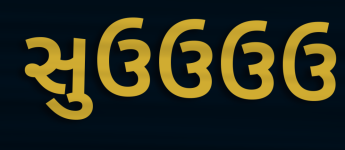
સુઉઉઉઉ